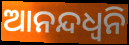
ଆନନ୍ଦଧ୍ଵନି